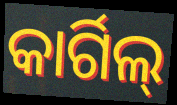
କାର୍ଗିଲ୍